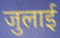
जुलाई